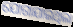
ଯୋଗାଯାଇଥିଲା